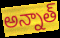
అన్నాత్